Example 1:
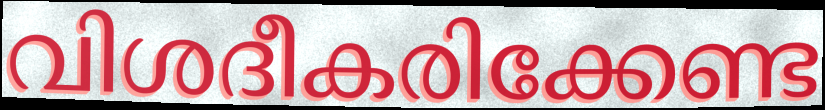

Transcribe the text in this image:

വിശദീകരിക്കേണ്ട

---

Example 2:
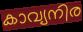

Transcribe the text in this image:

കാവ്യനിര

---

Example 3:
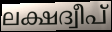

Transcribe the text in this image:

ലക്ഷദ്വീപ്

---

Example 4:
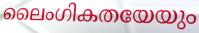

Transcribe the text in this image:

ലൈംഗികതയേയും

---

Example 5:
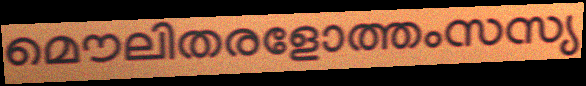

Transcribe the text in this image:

മൌലിതരളോത്തംസസ്യ